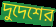
দুদেশের